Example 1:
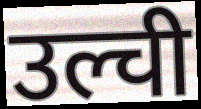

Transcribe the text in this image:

उल्ची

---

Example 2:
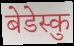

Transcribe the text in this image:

बेडेस्कु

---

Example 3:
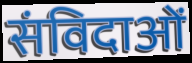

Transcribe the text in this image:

संविदाओं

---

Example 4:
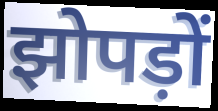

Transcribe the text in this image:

झोपड़ों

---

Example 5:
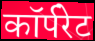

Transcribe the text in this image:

कॉर्परेट